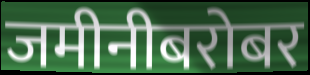
जमीनीबरोबर